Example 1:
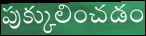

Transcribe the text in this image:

పుక్కులించడం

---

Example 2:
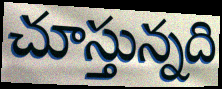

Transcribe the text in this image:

చూస్తున్నది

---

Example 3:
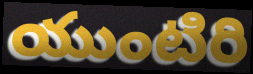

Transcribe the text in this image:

యుంటిరి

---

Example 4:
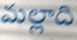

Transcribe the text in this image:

మల్లాది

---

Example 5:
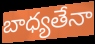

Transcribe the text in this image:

బాధ్యతేనా